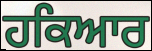
ਹਕਿਆਰ